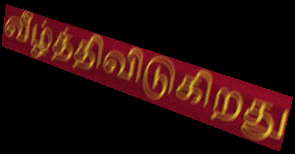
வீழ்த்திவிடுகிறது